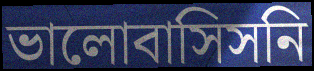
ভালোবাসিসনি